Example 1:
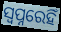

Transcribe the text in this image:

ସ୍ୱପ୍ନରେହିଁ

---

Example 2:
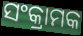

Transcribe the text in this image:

ସଂକ୍ରାମକ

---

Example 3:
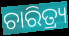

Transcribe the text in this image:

ଚାରିତ୍ର୍ୟ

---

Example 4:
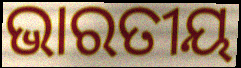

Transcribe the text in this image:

ଭାରତୀୟ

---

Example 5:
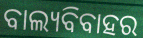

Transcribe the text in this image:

ବାଲ୍ୟବିବାହର